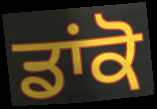
ਡਾਂਕੋ